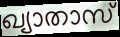
ഖ്യാതാസ്